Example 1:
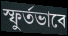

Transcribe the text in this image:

স্ফুর্তভাবে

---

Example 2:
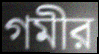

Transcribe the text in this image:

গমীর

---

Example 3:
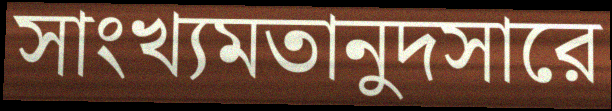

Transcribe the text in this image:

সাংখ্যমতানুদসারে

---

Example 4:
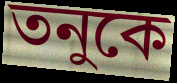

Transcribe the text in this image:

তনুকে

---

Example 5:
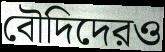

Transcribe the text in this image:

বৌদিদেরও